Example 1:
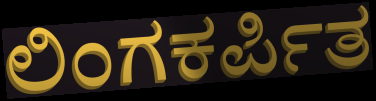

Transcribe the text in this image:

ಲಿಂಗಕರ್ಪಿತ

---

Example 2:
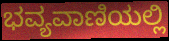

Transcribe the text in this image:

ಭವ್ಯವಾಣಿಯಲ್ಲಿ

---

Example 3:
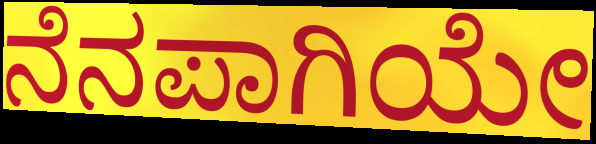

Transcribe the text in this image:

ನೆನಪಾಗಿಯೇ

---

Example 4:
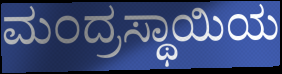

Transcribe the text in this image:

ಮಂದ್ರಸ್ಥಾಯಿಯ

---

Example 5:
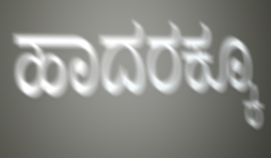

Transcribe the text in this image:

ಹಾದರಕ್ಕೂ